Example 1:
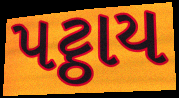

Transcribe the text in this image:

પટ્ઠાય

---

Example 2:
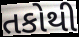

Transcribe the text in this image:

તકોથી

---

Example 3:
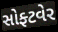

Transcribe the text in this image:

સોફ્ટવેર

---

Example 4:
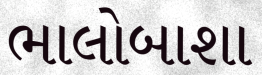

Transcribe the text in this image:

ભાલોબાશા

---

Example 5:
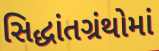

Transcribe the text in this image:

સિદ્ધાંતગ્રંથોમાં